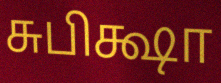
சுபிக்ஷா